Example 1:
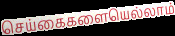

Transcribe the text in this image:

செய்கைகளையெல்லாம்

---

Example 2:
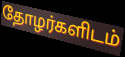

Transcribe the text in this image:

தோழர்களிடம்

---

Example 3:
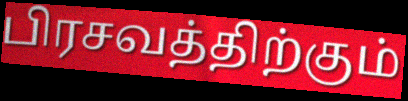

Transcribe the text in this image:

பிரசவத்திற்கும்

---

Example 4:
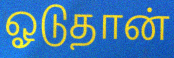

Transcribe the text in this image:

ஓடுதான்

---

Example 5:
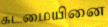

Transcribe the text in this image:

கடமையினை